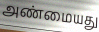
அண்மையது